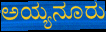
ಅಯ್ಯನೂರು